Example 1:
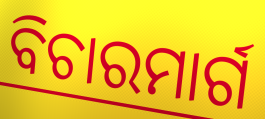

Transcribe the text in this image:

ବିଚାରମାର୍ଗ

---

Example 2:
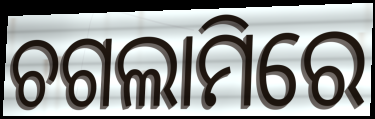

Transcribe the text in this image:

ଚଗଲାମିରେ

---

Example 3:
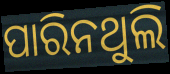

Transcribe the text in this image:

ପାରିନଥୁଲି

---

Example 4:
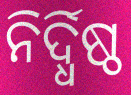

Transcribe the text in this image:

ନିର୍ଦ୍ଧିଷ୍ଠ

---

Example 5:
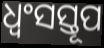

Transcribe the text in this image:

ଧ୍ୱଂସସ୍ତୂପ